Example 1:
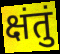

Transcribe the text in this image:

क्षंतुं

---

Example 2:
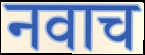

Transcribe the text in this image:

नवाच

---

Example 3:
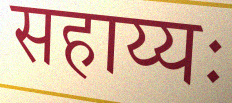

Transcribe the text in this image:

सहाय्यः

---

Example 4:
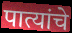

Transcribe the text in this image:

पात्यांचे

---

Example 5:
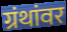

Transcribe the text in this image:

ग्रंथांवर